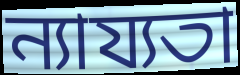
ন্যায্যতা